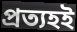
প্রত্যহই